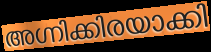
അഗ്നിക്കിരയാക്കി